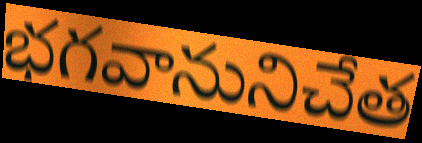
భగవానునిచేత